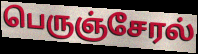
பெருஞ்சேரல்